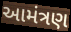
આમંત્રણ